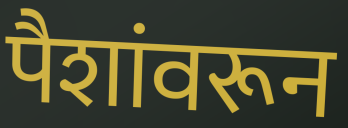
पैशांवरून